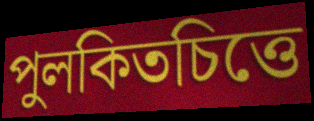
পুলকিতচিত্তে